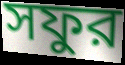
সফুর